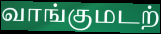
வாங்குமடற்